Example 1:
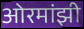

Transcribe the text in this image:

ओरमांझी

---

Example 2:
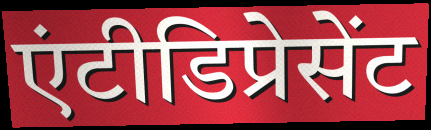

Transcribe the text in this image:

एंटीडिप्रेसेंट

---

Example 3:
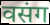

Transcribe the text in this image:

वसंग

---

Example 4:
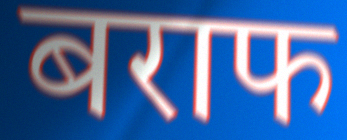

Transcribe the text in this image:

बराफ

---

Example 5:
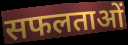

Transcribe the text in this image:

सफलताओं